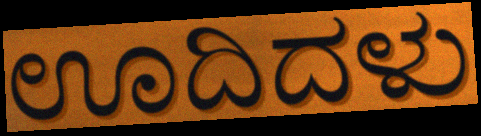
ಊದಿದಳು